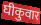
घीकुवार